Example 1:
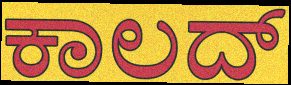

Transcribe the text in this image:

ಕಾಲದ್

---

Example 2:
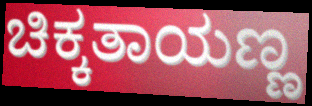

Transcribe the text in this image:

ಚಿಕ್ಕತಾಯಣ್ಣ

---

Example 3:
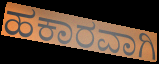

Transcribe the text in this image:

ಹಕಾರವಾಗಿ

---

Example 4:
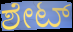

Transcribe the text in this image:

ಶೇಟ್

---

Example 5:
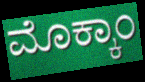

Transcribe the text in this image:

ಮೊಕ್ಕಾಂ